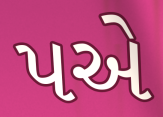
પએ